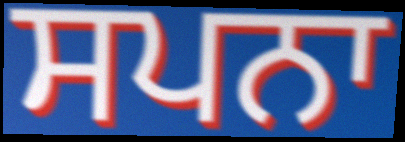
ਸਪਨਾ